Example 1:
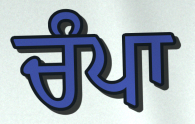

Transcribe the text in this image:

ਚੰਪਾ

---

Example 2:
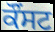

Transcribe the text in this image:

ਕੌਂਸਟ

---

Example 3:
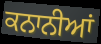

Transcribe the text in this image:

ਕਨਾਨੀਆਂ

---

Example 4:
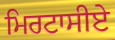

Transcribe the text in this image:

ਮਿਰਟਾਸੀਏ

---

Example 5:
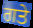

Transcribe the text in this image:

ਗਤੇ